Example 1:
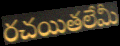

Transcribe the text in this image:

రచయితలేమీ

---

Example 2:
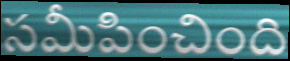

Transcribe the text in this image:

సమీపించింది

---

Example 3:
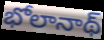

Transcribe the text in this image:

భోలానాథ్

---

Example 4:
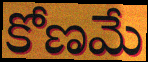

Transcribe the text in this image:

కోణమే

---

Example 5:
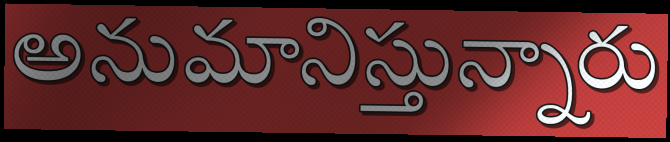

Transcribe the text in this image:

అనుమానిస్తున్నారు